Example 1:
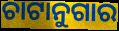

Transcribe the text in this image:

ଚାଟାନୁଗାର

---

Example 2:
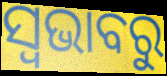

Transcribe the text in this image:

ସ୍ଵଭାବରୁ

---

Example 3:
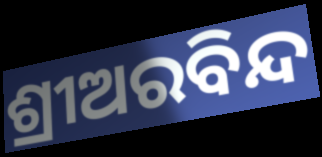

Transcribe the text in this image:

ଶ୍ରୀଅରବିନ୍ଦ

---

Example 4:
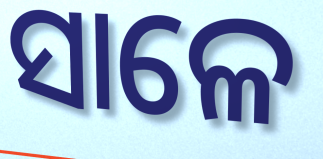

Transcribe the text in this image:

ସାଳେ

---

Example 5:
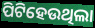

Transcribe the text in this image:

ପିଟିହେଉଥିଲା